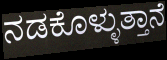
ನಡಕೊಳ್ಳುತ್ತಾನೆ